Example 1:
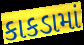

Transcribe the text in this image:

કાકડામાં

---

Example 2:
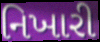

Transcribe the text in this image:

નિખારી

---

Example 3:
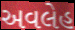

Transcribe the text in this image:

અવલેહ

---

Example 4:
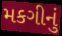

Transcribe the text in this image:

મકગીનું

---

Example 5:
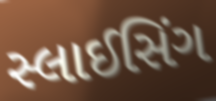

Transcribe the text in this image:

સ્લાઈસિંગ